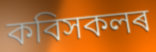
কবিসকলৰ